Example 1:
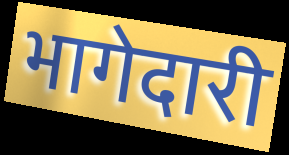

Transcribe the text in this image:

भागेदारी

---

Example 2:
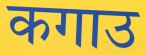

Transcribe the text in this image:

कगाउ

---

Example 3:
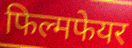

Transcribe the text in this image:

फिल्मफेयर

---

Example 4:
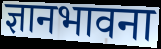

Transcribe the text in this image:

ज्ञानभावना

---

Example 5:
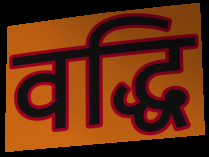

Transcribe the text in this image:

वद्धि